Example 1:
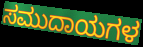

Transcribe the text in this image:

ಸಮುದಾಯಗಳ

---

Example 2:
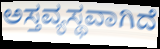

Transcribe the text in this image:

ಅಸ್ತವ್ಯಸ್ಥವಾಗಿದೆ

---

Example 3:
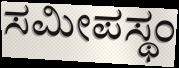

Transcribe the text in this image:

ಸಮೀಪಸ್ಥಂ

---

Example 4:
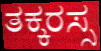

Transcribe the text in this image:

ತಕ್ಕರಸ್ಸ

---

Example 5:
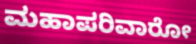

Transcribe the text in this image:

ಮಹಾಪರಿವಾರೋ